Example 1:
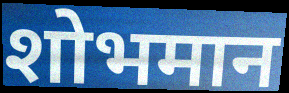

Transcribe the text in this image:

शोभमान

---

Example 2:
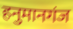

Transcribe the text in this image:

हनुमानगंज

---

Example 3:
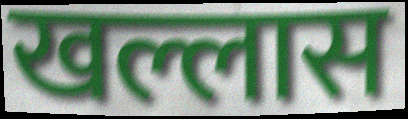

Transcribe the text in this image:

खल्लास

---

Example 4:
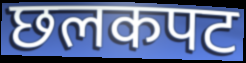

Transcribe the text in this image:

छलकपट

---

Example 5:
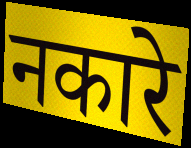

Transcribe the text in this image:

नकारे